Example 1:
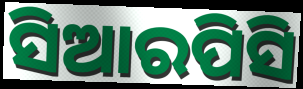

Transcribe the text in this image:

ସିଆରପିସି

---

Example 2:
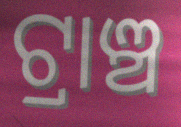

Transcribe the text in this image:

ଟ୍ରାଞ୍ଚ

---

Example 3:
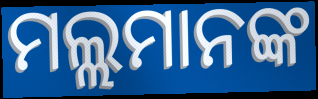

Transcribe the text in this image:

ମଲ୍ଲମାନଙ୍କ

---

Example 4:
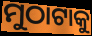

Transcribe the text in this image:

ମୁଠାଟାକୁ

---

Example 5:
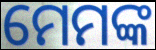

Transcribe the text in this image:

ମେମଙ୍କ